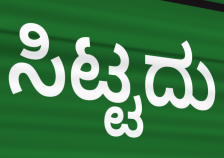
ಸಿಟ್ಟದು